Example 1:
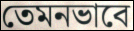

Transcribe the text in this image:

তেমনভাবে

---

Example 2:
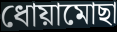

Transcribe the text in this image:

ধোয়ামোছা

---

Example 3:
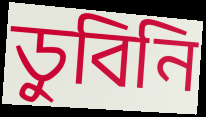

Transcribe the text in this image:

ডুবিনি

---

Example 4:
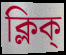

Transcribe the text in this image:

ক্লিক্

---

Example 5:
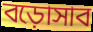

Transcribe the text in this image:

বড়োসাব